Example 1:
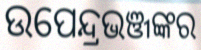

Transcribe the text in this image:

ଉପେନ୍ଦ୍ରଭଞ୍ଜଙ୍କର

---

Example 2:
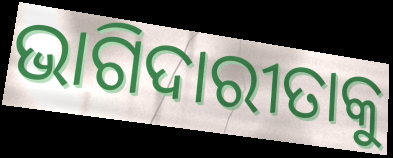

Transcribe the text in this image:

ଭାଗିଦାରୀତାକୁ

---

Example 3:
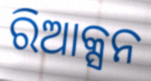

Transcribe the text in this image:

ରିଆକ୍ସନ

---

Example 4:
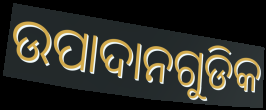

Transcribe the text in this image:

ଉପାଦାନଗୁଡିକ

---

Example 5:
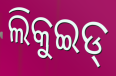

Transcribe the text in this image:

ଲିକୁଇଡ୍